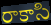
రాకాసి